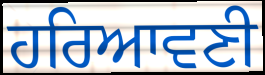
ਹਰਿਆਵਣੀ